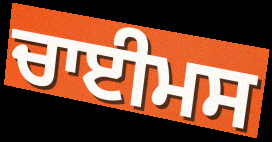
ਚਾਈਮਸ